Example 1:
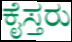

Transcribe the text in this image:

ಕೈಸ್ತರು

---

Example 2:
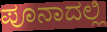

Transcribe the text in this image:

ಪೂನಾದಲ್ಲಿ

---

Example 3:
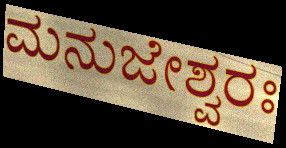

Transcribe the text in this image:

ಮನುಜೇಶ್ವರಃ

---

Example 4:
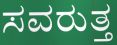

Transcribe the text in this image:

ಸವರುತ್ತ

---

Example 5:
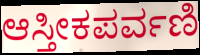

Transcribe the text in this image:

ಆಸ್ತೀಕಪರ್ವಣಿ